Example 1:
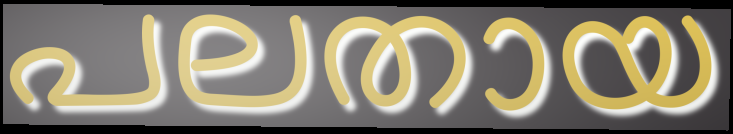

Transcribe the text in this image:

പലതായ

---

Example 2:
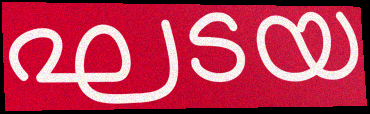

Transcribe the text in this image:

ഘടയ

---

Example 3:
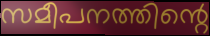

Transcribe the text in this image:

സമീപനത്തിന്റെ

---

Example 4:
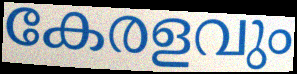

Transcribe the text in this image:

കേരളവും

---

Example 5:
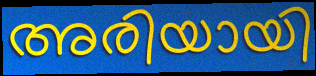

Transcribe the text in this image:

അരിയായി